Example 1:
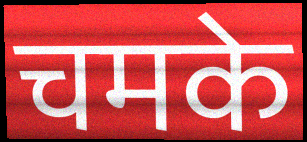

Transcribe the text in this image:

चमके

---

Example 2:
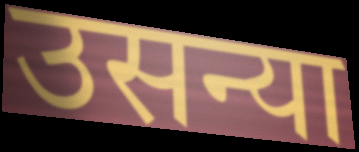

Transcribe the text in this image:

उसन्या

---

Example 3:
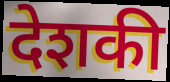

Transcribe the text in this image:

देशकी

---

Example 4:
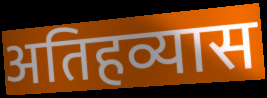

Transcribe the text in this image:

अतिहव्यास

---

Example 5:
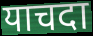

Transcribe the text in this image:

याचदा